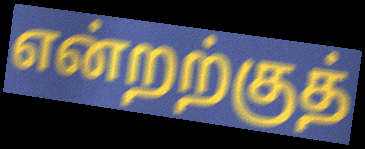
என்றற்குத்